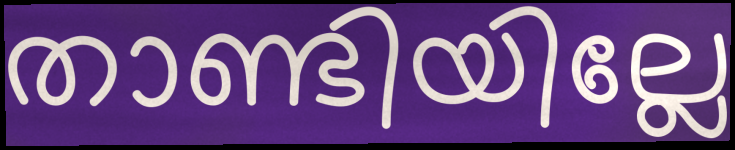
താണ്ടിയില്ലേ